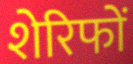
शेरिफों